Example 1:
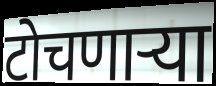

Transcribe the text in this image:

टोचणाऱ्या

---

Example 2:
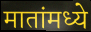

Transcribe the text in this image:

मातांमध्ये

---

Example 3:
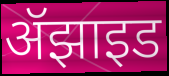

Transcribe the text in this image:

ॲझाइड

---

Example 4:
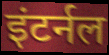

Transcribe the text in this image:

इंटर्नल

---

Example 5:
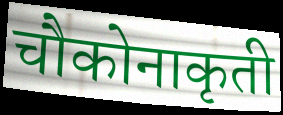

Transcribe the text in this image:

चौकोनाकृती